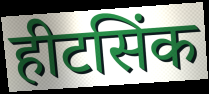
हीटसिंक